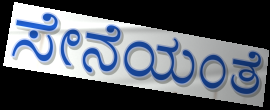
ಸೇನೆಯಂತೆ